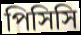
পিসিসি